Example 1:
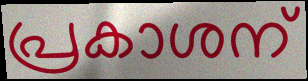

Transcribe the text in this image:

പ്രകാശന്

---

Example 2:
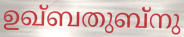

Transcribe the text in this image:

ഉഖ്ബതുബ്നു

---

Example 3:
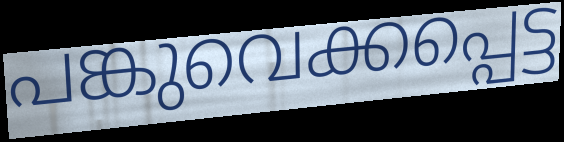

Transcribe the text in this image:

പങ്കുവെക്കപ്പെട്ട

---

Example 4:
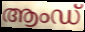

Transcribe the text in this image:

ആംഡ്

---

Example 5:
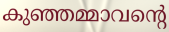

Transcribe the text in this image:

കുഞ്ഞമ്മാവന്റെ